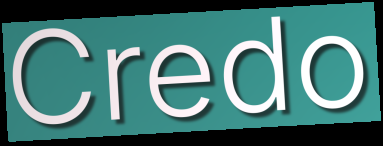
Credo